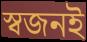
স্বজনই